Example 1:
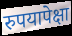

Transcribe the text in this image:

रुपयापेक्षा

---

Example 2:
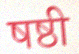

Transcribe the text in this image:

षष्ठी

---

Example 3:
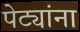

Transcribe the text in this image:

पेट्यांना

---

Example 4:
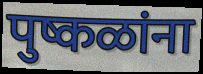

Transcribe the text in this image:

पुष्कळांना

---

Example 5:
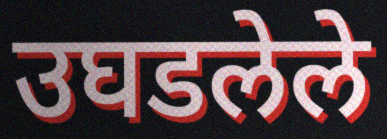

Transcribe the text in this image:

उघडलेले